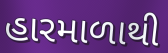
હારમાળાથી